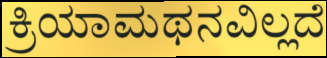
ಕ್ರಿಯಾಮಥನವಿಲ್ಲದೆ